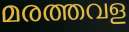
മരത്തവള